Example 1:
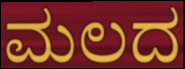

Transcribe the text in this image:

ಮಲದ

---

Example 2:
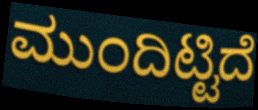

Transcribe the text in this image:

ಮುಂದಿಟ್ಟಿದೆ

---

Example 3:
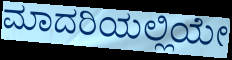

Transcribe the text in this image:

ಮಾದರಿಯಲ್ಲಿಯೇ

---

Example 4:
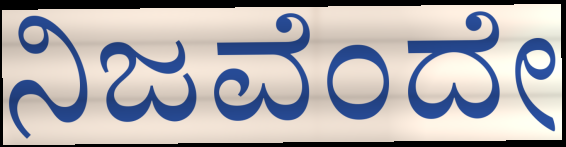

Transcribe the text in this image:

ನಿಜವೆಂದೇ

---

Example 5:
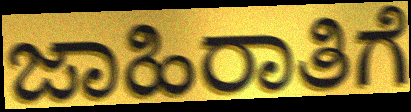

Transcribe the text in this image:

ಜಾಹಿರಾತಿಗೆ